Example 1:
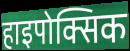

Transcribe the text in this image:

हाइपोक्सिक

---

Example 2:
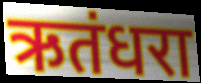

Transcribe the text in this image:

ऋतंधरा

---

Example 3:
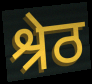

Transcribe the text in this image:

श्रेठ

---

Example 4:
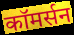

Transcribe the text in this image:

कॉमर्सन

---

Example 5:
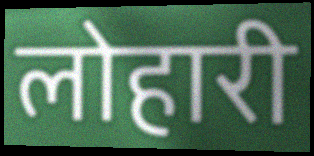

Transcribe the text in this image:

लोहारी